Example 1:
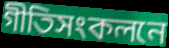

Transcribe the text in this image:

গীতিসংকলনে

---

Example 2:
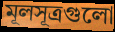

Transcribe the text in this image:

মূলসূত্রগুলো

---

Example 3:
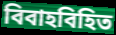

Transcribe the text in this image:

বিবাহবিহিত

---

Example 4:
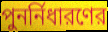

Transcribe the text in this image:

পুনর্নিধারণের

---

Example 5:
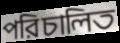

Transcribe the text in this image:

পরিচালিত